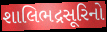
શાલિભદ્રસૂરિનો